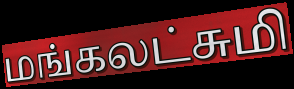
மங்கலட்சுமி